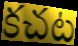
కచట